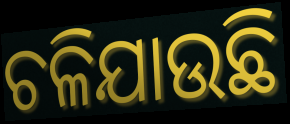
ଚଳିଯାଉଛି